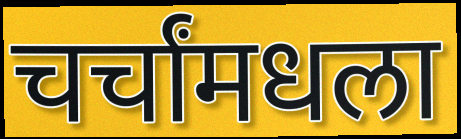
चर्चांमधला